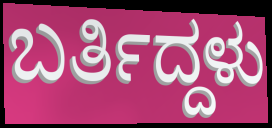
ಬರ್ತಿದ್ದಳು